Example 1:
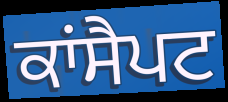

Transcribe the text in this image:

ਕਾਂਸੈਪਟ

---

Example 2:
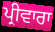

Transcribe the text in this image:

ਪ੍ਰੀਵਾਰਾ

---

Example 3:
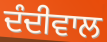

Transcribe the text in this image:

ਦੰਦੀਵਾਲ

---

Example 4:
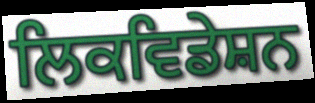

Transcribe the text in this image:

ਲਿਕਵਿਡੇਸ਼ਨ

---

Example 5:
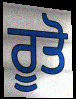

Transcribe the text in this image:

ਰੂਤੋ